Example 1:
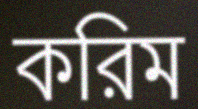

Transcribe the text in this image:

করিম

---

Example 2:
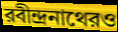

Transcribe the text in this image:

রবীন্দ্রনাথেরও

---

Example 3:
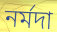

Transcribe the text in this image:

নর্মদা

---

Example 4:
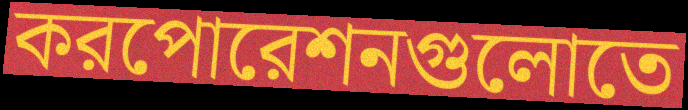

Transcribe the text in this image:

করপোরেশনগুলোতে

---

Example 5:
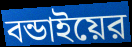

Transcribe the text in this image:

বন্ডাইয়ের